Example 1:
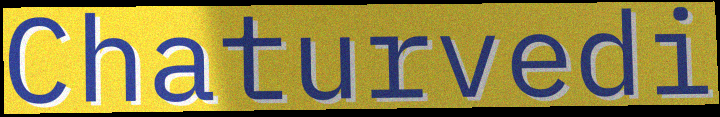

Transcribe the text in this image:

Chaturvedi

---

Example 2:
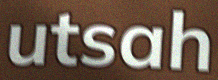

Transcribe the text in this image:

utsah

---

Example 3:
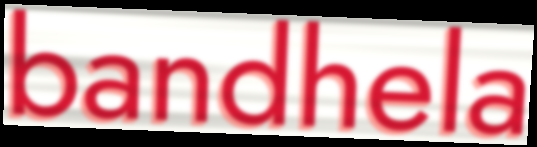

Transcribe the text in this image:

bandhela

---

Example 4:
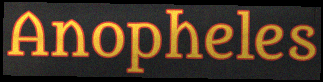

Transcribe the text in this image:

Anopheles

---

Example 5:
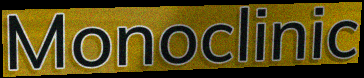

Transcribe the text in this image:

Monoclinic